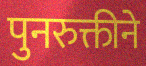
पुनरुक्तीने